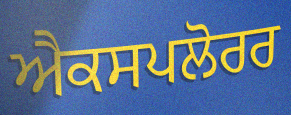
ਐਕਸਪਲੋਰਰ